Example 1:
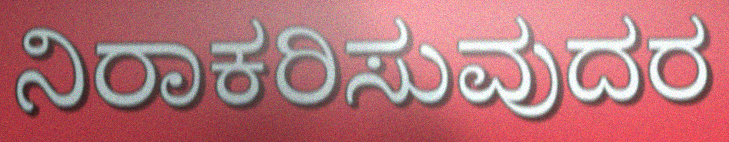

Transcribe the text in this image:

ನಿರಾಕರಿಸುವುದರ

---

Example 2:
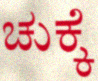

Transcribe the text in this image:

ಚುಕ್ಕೆ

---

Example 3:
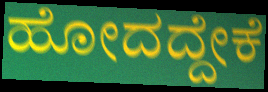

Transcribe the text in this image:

ಹೋದದ್ದೇಕೆ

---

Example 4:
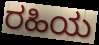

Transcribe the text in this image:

ರಹಿಯ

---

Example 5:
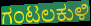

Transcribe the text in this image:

ಗಂಟಲಕುಳಿ